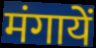
मंगायें